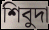
শিবুদা